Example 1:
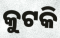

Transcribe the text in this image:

କୁଟକି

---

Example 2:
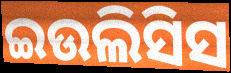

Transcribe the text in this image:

ଇଉଲିସିସ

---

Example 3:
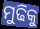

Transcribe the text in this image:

ମୁଢିକୁ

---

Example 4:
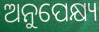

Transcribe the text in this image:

ଅନୁପେକ୍ଷ୍ୟ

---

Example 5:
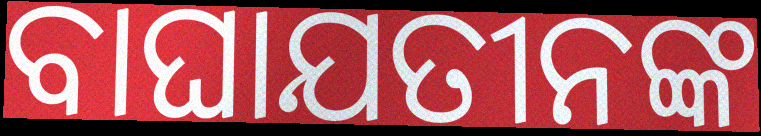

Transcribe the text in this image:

ବାଘାଯତୀନଙ୍କ